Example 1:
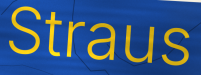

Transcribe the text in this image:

Straus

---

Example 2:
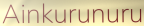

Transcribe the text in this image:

Ainkurunuru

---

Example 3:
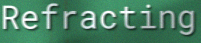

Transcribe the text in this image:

Refracting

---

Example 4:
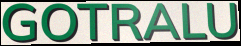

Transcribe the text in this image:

GOTRALU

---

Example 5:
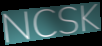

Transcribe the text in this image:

NCSK